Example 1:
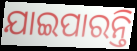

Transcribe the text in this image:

ଯାଇପାରନ୍ତି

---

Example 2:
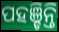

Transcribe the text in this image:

ପହଞ୍ଚିନ୍ତି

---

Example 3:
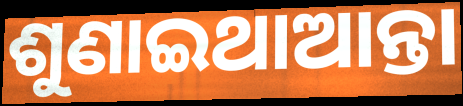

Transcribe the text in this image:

ଶୁଣାଇଥାଆନ୍ତା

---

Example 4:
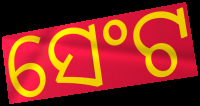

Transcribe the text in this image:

ସେଂଟ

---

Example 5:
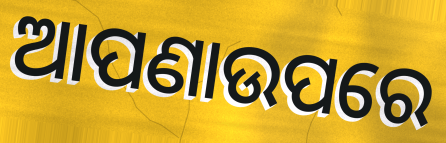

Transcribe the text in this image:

ଆପଣାଉପରେ